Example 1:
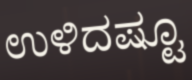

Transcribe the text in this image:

ಉಳಿದಷ್ಟೂ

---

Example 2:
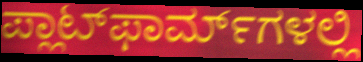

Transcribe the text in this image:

ಪ್ಲಾಟ್‌ಫಾರ್ಮ್‌ಗಳಲ್ಲಿ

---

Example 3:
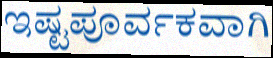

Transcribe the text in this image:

ಇಷ್ಟಪೂರ್ವಕವಾಗಿ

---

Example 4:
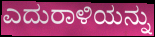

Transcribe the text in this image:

ಎದುರಾಳಿಯನ್ನು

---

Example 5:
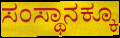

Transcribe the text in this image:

ಸಂಸ್ಥಾನಕ್ಕೂ